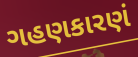
ગહણકારણં